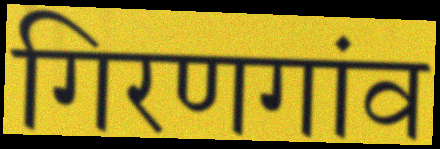
गिरणगांव